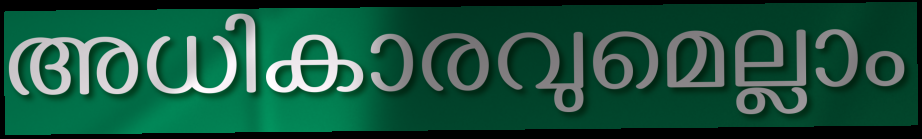
അധികാരവുമെല്ലാം